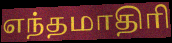
எந்தமாதிரி